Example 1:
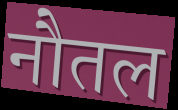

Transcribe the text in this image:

नौतल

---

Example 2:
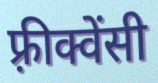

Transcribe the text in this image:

फ़्रीक्वेंसी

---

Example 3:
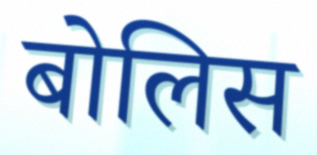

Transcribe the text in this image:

बोलिस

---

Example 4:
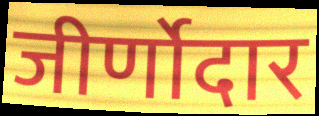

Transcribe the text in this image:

जीर्णोदार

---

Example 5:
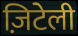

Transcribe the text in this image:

ज़िटेली